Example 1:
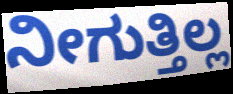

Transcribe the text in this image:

ನೀಗುತ್ತಿಲ್ಲ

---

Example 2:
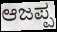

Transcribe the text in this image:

ಆಜಪ್ಪ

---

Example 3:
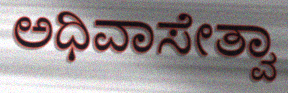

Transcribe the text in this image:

ಅಧಿವಾಸೇತ್ವಾ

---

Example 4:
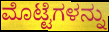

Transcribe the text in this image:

ಮೊಟ್ಟೆಗಳನ್ನು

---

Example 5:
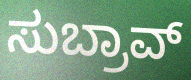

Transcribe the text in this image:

ಸುಬ್ರಾವ್